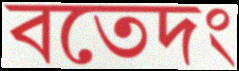
বতেদং